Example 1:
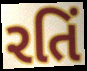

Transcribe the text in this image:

રતિં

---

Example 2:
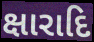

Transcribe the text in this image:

ક્ષારાદિ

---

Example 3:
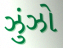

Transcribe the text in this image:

ઝુંઝો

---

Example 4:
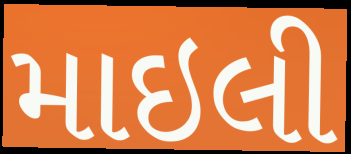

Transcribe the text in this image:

માઇલી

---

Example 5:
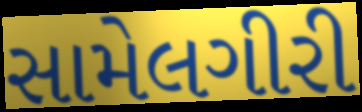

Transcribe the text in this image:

સામેલગીરી